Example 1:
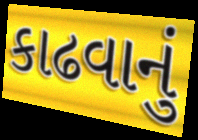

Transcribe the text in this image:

કાઢવાનું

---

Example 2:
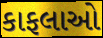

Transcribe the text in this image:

કાફલાઓ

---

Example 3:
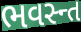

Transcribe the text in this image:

ભવસ્ન્ત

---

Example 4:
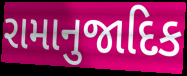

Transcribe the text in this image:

રામાનુજાદિક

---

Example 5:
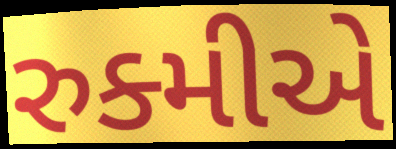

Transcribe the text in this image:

રુક્મીએ